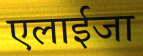
एलाईजा